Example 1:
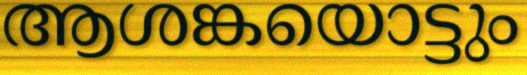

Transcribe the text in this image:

ആശങ്കയൊട്ടും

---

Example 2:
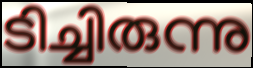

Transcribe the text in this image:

ടിച്ചിരുന്നു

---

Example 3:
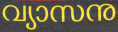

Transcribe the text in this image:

വ്യാസനു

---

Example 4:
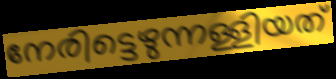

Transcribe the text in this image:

നേരിട്ടെഴുന്നള്ളിയത്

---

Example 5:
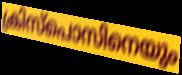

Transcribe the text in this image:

ക്രിസ്പൊസിനെയും